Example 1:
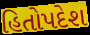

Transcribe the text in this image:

હિતોપદેશ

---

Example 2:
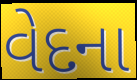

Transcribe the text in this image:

વેદના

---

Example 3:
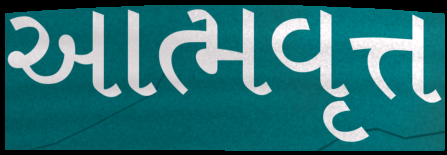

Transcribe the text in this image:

આત્મવૃત્ત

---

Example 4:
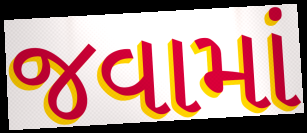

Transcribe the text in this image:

જવામાં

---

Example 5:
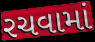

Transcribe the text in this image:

રચવામાં